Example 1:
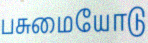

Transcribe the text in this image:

பசுமையோடு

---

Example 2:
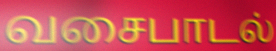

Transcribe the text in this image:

வசைபாடல்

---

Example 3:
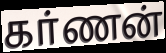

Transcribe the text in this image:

கர்ணன்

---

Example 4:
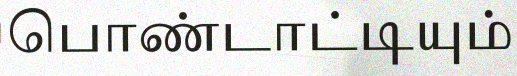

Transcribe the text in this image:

பொண்டாட்டியும்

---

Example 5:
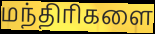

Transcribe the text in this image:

மந்திரிகளை